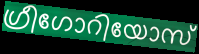
ഗ്രീഗോറിയോസ്